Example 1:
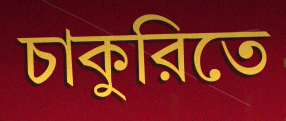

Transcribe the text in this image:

চাকুরিতে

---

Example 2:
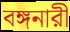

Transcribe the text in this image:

বঙ্গনারী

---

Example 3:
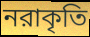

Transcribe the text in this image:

নরাকৃতি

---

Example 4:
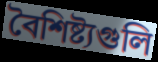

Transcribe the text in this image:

বৈশিষ্ট্যগুলি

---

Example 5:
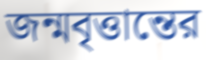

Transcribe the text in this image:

জন্মবৃত্তান্তের